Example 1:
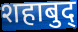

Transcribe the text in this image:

शहाबुद्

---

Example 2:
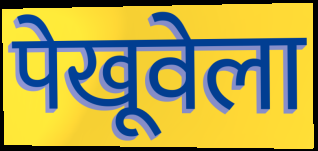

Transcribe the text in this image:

पेखूवेला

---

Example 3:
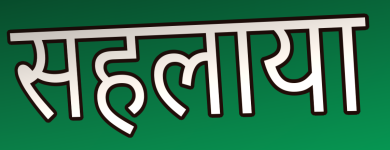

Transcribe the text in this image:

सहलाया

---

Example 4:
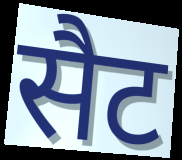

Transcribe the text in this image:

सैट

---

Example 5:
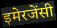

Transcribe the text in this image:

इमेरजेंसी